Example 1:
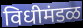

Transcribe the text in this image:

विधीमंडळ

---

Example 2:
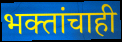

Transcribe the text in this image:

भक्तांचाही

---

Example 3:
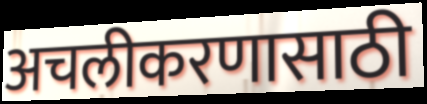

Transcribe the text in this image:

अचलीकरणासाठी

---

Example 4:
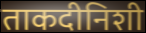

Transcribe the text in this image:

ताकदीनिशी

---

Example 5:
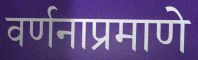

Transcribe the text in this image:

वर्णनाप्रमाणे